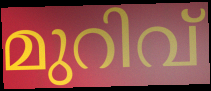
മുറിവ്